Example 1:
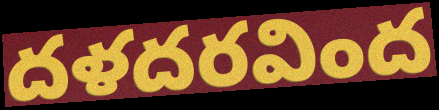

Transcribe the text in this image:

దళదరవింద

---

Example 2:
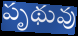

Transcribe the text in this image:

పృథువు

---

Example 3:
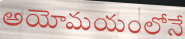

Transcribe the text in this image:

అయోమయంలోనే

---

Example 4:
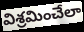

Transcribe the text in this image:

విశ్రమించేలా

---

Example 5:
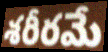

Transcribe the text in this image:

శరీరమే